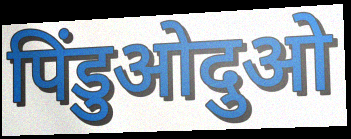
पिंडुओदुओ